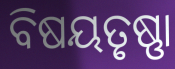
ବିଷୟତୃଷ୍ଣା